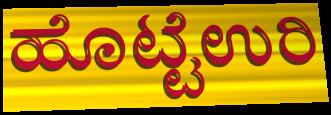
ಹೊಟ್ಟೆಉರಿ